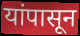
यांपासून